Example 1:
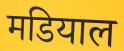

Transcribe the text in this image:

मडियाल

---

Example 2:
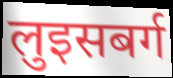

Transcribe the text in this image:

लुइसबर्ग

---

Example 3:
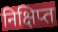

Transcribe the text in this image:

निक्षिप्त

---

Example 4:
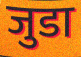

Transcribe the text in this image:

जुडा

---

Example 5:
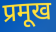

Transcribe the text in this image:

प्रमूख